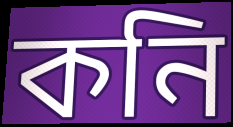
কনি